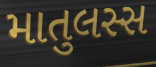
માતુલસ્સ